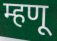
म्हणू